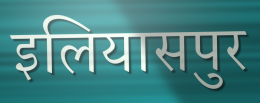
इलियासपुर